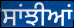
ਸਾਂਝੀਆਂ